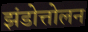
झंडोत्तोलन